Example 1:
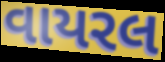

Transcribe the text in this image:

વાયરલ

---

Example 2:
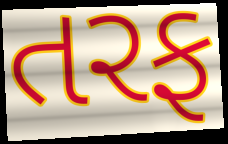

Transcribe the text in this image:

તરફ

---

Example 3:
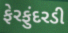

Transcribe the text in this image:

ફેરફુંદરડી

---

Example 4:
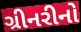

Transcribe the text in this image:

ગ્રીનરીનો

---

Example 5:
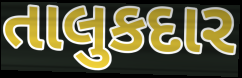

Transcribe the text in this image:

તાલુકદાર